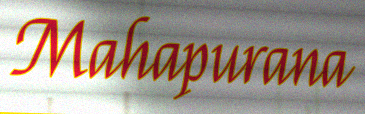
Mahapurana